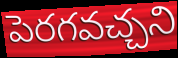
పెరగవచ్చని